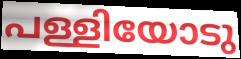
പള്ളിയോടു